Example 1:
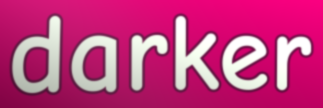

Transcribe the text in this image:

darker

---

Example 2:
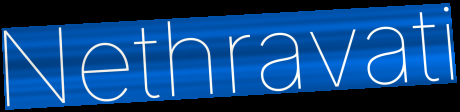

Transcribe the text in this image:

Nethravati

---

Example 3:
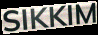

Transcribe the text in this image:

SIKKIM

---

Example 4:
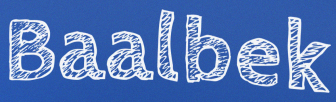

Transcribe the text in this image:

Baalbek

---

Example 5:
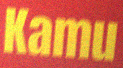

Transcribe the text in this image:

Kamu